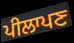
ਪੀਲਾਪਣ